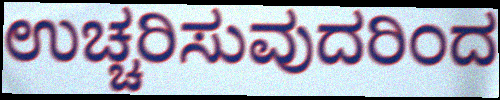
ಉಚ್ಚರಿಸುವುದರಿಂದ